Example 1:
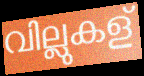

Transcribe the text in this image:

വില്ലുകള്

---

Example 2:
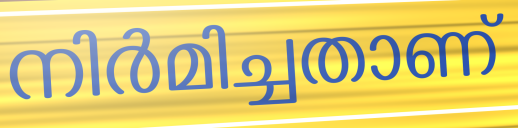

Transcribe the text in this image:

നിർമിച്ചതാണ്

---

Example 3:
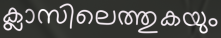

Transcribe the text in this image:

ക്ലാസിലെത്തുകയും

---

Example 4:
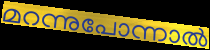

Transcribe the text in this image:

മറന്നുപോന്നാൽ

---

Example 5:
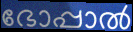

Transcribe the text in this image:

ഭോപ്പാൽ